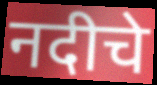
नदीचे